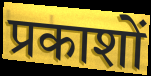
प्रकाशों